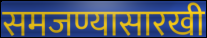
समजण्यासारखी